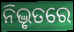
ନିଦ୍ଭୃତରେ